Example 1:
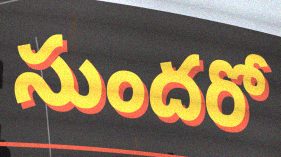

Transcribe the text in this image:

సుందరో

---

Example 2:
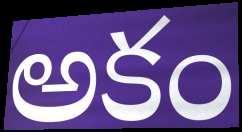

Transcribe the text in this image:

అకం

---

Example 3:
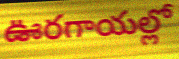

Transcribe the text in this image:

ఊరగాయల్లో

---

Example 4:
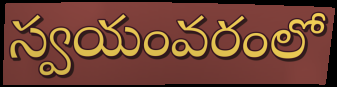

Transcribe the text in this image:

స్వయంవరంలో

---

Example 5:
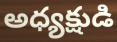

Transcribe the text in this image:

అధ్యక్షుడి